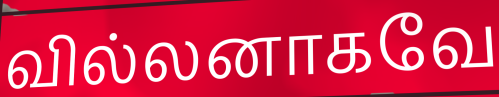
வில்லனாகவே